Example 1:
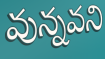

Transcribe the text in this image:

వున్నవని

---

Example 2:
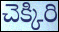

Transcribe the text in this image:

చెక్కిరి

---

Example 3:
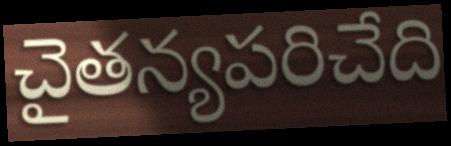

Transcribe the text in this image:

చైతన్యపరిచేది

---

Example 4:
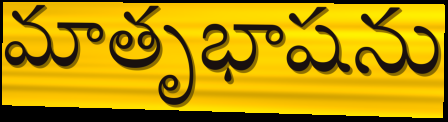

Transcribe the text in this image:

మాతృభాషను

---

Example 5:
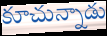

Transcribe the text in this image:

కూచున్నాడు